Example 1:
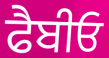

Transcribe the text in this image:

ਫੈਬੀਓ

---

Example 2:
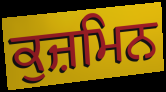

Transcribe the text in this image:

ਕੁਜ਼ਮਿਨ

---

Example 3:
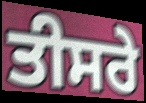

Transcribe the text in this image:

ਤੀਸਰੇ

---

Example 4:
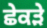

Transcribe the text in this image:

ਛੇਕੜੇ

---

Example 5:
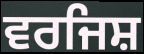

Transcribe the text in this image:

ਵਰਜਿਸ਼